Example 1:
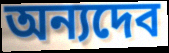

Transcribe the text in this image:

অন্যদেব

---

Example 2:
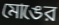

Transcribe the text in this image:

মোঙের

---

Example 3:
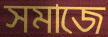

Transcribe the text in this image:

সমাজে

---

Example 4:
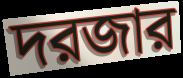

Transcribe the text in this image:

দরজার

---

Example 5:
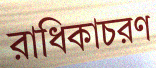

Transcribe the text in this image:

রাধিকাচরণ